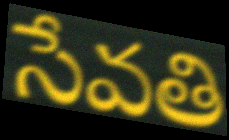
సేవతి